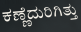
ಕಣ್ಣೆದುರಿಗಿತ್ತು